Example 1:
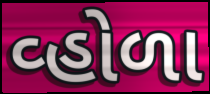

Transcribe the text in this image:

વ્હોળા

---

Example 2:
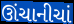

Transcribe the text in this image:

ઊંચાનીચાં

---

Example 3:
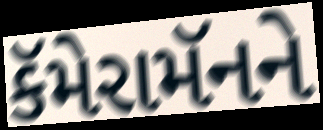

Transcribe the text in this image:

કૅમેરામૅનને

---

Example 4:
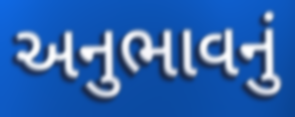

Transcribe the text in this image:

અનુભાવનું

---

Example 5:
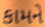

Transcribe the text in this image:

કામને